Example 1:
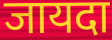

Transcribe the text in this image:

जायदा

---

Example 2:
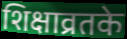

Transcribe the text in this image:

शिक्षाव्रतके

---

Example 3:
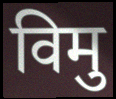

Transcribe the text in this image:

विमु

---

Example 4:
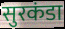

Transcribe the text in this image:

सुरकंडा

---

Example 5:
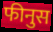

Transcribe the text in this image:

फीनुस